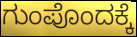
ಗುಂಪೊಂದಕ್ಕೆ